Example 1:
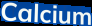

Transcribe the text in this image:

Calcium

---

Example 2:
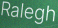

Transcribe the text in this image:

Ralegh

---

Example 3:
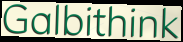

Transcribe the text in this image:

Galbithink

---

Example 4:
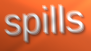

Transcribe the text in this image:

spills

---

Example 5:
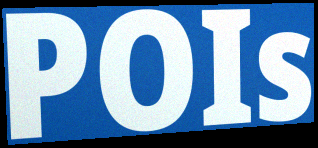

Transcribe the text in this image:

POIs